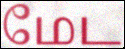
மேட